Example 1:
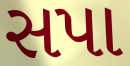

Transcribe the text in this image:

સપા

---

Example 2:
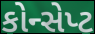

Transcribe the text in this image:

કોન્સેપ્ટ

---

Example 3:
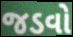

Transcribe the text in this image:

જડવો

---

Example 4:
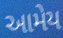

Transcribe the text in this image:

આમેય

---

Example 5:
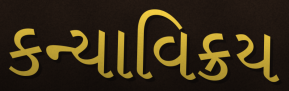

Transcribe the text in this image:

કન્યાવિક્રય